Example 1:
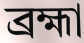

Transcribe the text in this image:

ব্ৰহ্মা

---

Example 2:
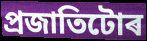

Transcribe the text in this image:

প্ৰজাতিটোৰ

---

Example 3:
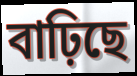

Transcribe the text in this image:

বাঢ়িছে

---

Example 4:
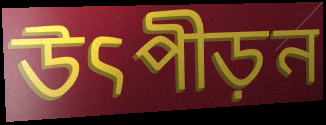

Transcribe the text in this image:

উৎপীড়ন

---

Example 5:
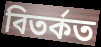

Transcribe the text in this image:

বিতৰ্কত